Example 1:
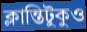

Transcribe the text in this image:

ক্লান্তিটুকুও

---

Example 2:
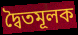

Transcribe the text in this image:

দ্বৈতমূলক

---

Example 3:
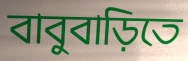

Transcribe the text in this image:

বাবুবাড়িতে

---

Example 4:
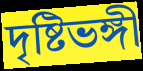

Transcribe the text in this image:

দৃষ্টিভঙ্গী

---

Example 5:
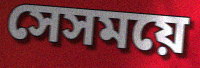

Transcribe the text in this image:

সেসময়ে